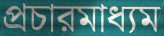
প্রচারমাধ্যম